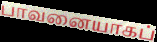
பாவனையாகப்